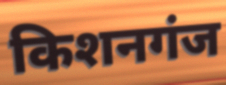
किशनगंज